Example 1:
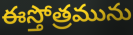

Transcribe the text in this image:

ఈస్తోత్రమును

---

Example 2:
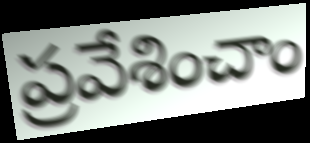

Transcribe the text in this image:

ప్రవేశించాం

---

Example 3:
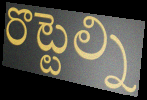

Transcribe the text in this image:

రొట్టెల్ని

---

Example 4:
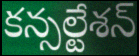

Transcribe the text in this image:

కన్సల్టేశన్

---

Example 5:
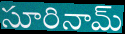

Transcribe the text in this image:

సూరినామ్